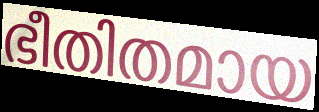
ഭീതിതമായ